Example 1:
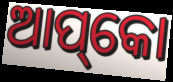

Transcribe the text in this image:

ଆପ୍‌କୋ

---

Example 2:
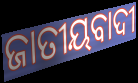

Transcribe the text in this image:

ଜାତୀୟବାଦୀ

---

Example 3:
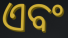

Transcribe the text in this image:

ଏବଂ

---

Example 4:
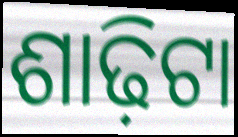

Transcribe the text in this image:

ଶାଢ଼ିଟା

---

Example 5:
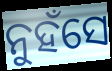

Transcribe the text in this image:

ନୁହଁସେ